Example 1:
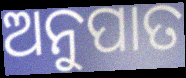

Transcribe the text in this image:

ଅନୁପାତ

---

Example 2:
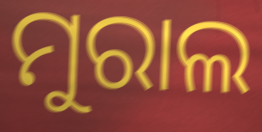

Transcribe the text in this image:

ମୁରାଲ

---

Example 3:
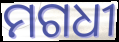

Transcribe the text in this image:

ମଗଧୀ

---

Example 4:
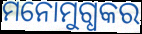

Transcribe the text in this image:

ମନୋମୁଗ୍ଧକର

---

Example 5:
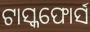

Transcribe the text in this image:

ଟାସ୍କଫୋର୍ସ